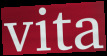
vita